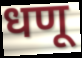
धणू